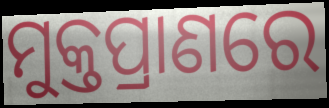
ମୁକ୍ତପ୍ରାଣରେ